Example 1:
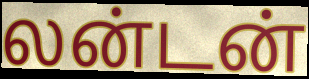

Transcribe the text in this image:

லன்டன்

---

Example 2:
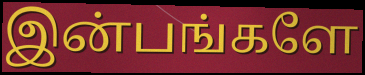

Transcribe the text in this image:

இன்பங்களே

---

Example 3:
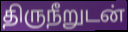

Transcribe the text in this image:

திருநீறுடன்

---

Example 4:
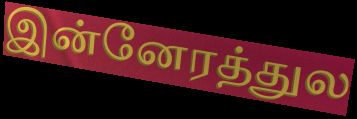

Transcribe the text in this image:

இன்னேரத்துல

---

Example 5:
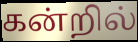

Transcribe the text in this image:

கன்றில்